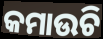
କମାଉଚି